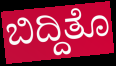
ಬಿದ್ದಿತೊ